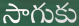
సాగుకు